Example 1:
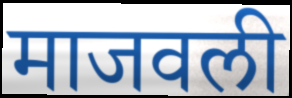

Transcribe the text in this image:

माजवली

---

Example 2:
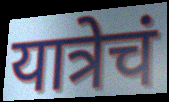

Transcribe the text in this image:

यात्रेचं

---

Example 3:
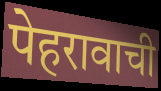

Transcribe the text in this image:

पेहरावाची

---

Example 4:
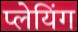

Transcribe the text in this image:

प्लेयिंग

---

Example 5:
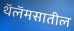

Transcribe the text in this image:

थॅलॅमसातील